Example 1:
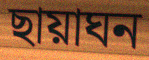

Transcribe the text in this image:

ছায়াঘন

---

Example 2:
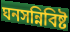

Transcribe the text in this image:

ঘনসন্নিবিষ্ট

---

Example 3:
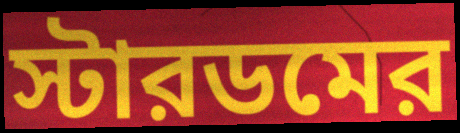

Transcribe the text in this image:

স্টারডমের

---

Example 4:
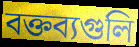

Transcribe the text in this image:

বক্তব্যগুলি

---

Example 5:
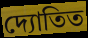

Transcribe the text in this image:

দ্যোতিত